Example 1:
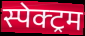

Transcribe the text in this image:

स्पेक्ट्रम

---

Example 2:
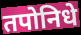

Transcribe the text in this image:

तपोनिधे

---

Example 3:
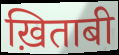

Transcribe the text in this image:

ख़िताबी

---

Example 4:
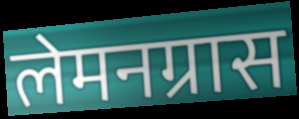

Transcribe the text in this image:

लेमनग्रास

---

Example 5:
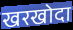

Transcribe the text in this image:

खरखोदा